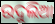
ଉଦୁଲିଆ